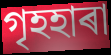
গৃহহাৰা